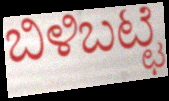
ಬಿಳಿಬಟ್ಟೆ